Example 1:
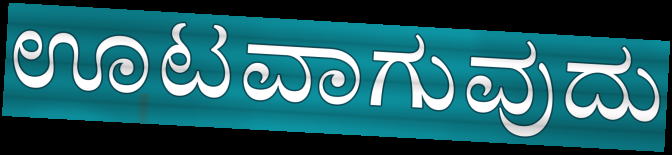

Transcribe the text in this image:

ಊಟವಾಗುವುದು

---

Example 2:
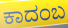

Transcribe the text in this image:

ಕಾದಂಬ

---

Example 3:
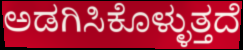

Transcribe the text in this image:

ಅಡಗಿಸಿಕೊಳ್ಳುತ್ತದೆ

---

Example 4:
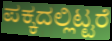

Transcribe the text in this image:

ಪಕ್ಕದಲ್ಲಿಟ್ಟರೆ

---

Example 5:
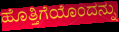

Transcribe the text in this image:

ಹೊತ್ತಿಗೆಯೊಂದನ್ನು